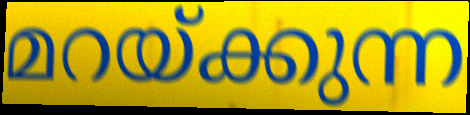
മറയ്ക്കുന്ന